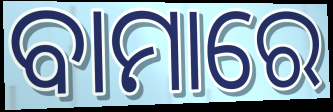
ବାମାରେ